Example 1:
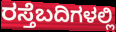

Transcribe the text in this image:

ರಸ್ತೆಬದಿಗಳಲ್ಲಿ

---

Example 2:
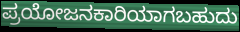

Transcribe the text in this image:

ಪ್ರಯೋಜನಕಾರಿಯಾಗಬಹುದು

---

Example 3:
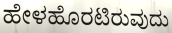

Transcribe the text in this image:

ಹೇಳಹೊರಟಿರುವುದು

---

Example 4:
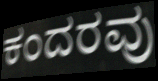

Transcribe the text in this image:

ಕಂದರವು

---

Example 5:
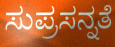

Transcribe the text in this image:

ಸುಪ್ರಸನ್ನತೆ